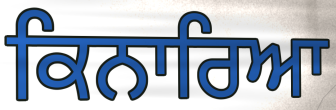
ਕਿਨਾਰਿਆ